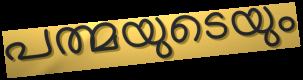
പത്മയുടെയും